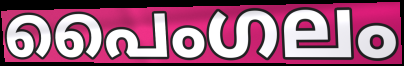
പൈംഗലം